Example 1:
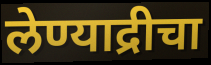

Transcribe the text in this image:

लेण्याद्रीचा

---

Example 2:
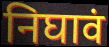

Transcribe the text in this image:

निघावं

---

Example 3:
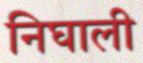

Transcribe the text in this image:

निघाली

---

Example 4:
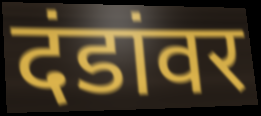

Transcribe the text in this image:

दंडांवर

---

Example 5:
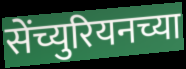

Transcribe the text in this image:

सेंच्युरियनच्या